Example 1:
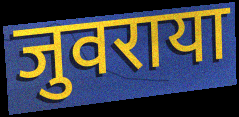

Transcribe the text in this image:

जुवराया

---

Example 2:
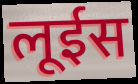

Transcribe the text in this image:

लूईस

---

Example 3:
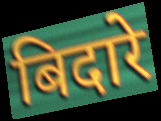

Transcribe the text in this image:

बिदारे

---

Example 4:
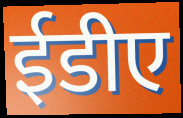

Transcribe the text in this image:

ईडीए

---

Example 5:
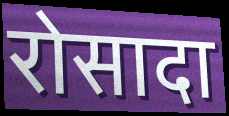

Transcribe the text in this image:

रोसादा